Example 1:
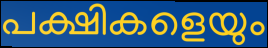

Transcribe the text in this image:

പക്ഷികളെയും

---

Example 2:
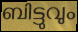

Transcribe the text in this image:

ബിട്ടുവും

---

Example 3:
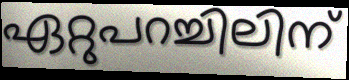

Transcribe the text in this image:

ഏറ്റുപറച്ചിലിന്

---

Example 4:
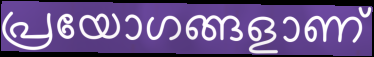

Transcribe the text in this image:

പ്രയോഗങ്ങളാണ്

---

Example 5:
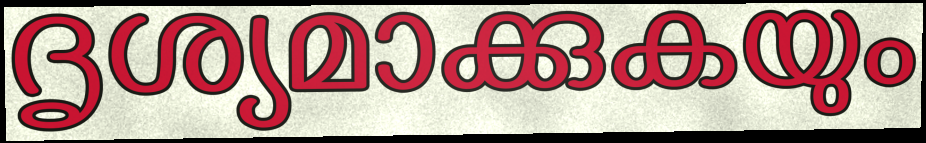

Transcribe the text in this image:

ദൃശ്യമാക്കുകയും